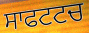
ਸਾਫਟਟਚ